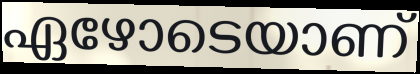
ഏഴോടെയാണ്